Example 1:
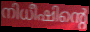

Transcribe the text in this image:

നിധീഷിന്റെ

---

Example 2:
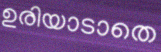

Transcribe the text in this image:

ഉരിയാടാതെ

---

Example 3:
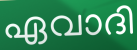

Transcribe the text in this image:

ഏവാദി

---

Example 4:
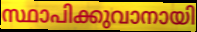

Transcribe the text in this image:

സ്ഥാപിക്കുവാനായി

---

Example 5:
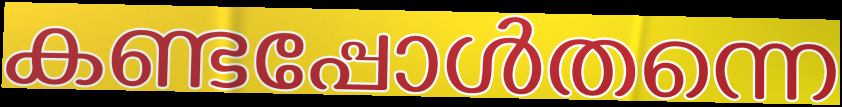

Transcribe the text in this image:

കണ്ടപ്പോൾതന്നെ